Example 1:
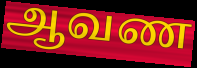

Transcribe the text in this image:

ஆவண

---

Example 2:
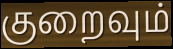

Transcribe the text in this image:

குறைவும்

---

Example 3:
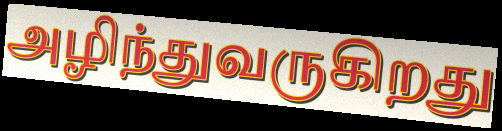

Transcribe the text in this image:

அழிந்துவருகிறது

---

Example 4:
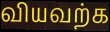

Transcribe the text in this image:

வியவற்க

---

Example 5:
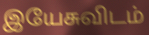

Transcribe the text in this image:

இயேசுவிடம்